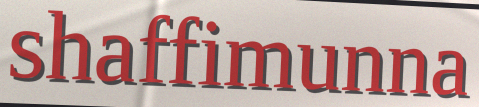
shaffimunna